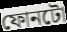
ফোনটো